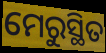
ମେରୁସ୍ଥିତ